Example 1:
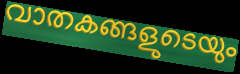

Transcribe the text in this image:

വാതകങ്ങളുടെയും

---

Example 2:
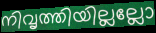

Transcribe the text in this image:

നിവൃത്തിയില്ലല്ലോ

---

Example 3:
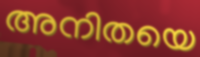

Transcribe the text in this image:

അനിതയെ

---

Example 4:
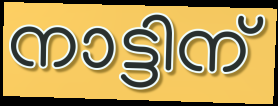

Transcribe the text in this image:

നാട്ടിന്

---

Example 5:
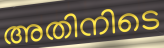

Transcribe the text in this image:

അതിനിടെ